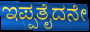
ಇಪ್ಪತೈದನೇ